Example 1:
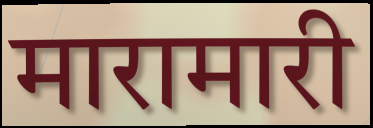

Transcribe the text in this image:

मारामारी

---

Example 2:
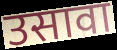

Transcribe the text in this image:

उसावा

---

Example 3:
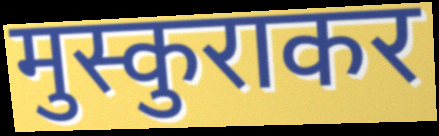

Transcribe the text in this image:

मुस्कुराकर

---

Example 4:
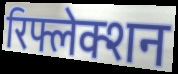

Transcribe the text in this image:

रिफ्लेक्शन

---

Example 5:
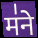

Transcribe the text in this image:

म॑ने